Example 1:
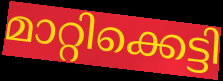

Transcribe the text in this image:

മാറ്റിക്കെട്ടി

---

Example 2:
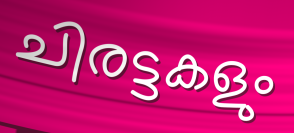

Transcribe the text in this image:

ചിരട്ടകളും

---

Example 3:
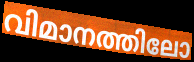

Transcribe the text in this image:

വിമാനത്തിലോ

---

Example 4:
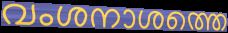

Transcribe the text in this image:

വംശനാശത്തെ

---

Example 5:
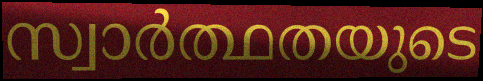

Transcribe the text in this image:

സ്വാർത്ഥതയുടെ